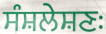
ਸੰਸ਼ਲੇਸ਼ਣਃ